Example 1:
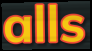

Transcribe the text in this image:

alls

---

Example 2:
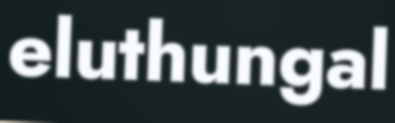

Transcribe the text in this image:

eluthungal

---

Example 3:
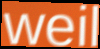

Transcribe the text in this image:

weil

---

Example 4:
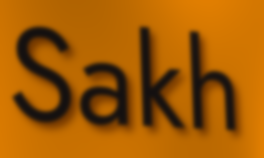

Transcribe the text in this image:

Sakh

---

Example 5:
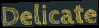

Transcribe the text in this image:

Delicate